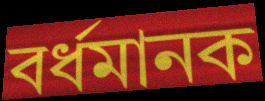
বর্ধমানক